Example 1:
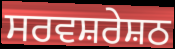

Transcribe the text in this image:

ਸਰਵਸ਼ਰੇਸ਼ਠ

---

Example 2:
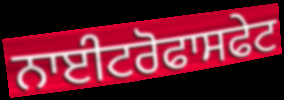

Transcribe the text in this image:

ਨਾਈਟਰੋਫਾਸਫੇਟ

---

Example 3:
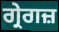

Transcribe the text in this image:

ਗ੍ਰੇਗਜ਼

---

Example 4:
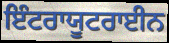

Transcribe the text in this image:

ਇੰਟਰਾਯੂਟਰਾਈਨ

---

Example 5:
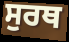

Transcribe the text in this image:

ਸੁਰਥ